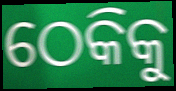
ଠେକିକୁ